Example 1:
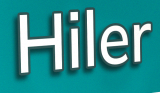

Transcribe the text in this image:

Hiler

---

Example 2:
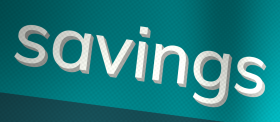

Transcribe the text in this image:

savings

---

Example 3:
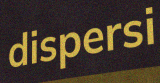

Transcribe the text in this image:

dispersi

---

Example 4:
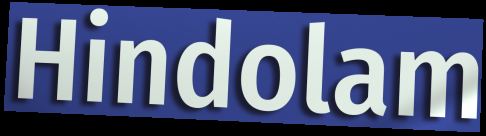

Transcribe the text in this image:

Hindolam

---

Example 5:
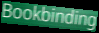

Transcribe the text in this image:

Bookbinding